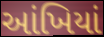
આંખિયાં